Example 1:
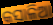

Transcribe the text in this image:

କସାଳିଆ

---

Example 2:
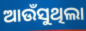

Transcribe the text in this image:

ଆଉଁସୁଥିଲା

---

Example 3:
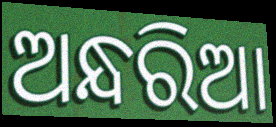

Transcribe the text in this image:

ଅନ୍ଧରିଆ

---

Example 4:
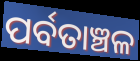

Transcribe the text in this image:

ପର୍ବତାଞ୍ଚଳ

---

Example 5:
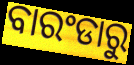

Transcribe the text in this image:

ବାରଂଡାରୁ